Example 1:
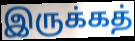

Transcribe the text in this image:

இருக்கத்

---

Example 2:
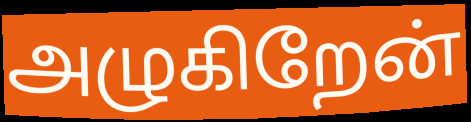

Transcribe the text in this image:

அழுகிறேன்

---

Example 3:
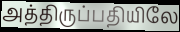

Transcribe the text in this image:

அத்திருப்பதியிலே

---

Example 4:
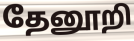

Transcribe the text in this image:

தேனூறி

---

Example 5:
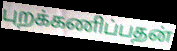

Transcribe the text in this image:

புறக்கணிப்பதன்